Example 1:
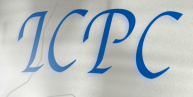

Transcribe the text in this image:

ICPC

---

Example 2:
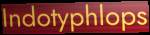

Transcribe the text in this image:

Indotyphlops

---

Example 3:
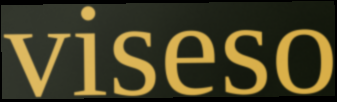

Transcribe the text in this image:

viseso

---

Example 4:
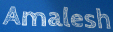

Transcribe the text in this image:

Amalesh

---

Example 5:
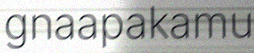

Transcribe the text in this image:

gnaapakamu